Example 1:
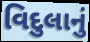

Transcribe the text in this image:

વિદુલાનું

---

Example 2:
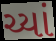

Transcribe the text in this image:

ચ્યાં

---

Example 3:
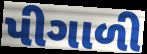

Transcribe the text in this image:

પીગાળી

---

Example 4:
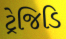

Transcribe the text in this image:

ટ્રેજિડિ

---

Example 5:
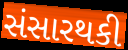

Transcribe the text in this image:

સંસારથકી